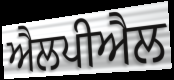
ਐਲਪੀਐਲ